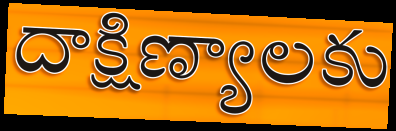
దాక్షిణ్యాలకు